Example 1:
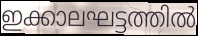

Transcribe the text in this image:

ഇക്കാലഘട്ടത്തിൽ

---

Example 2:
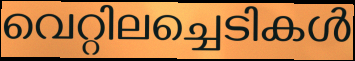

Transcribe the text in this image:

വെറ്റിലച്ചെടികൾ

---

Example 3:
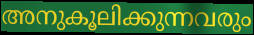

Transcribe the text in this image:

അനുകൂലിക്കുന്നവരും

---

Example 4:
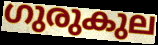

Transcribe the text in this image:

ഗുരുകുല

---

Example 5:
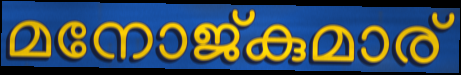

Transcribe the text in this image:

മനോജ്കുമാര്